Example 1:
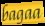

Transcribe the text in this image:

bagaa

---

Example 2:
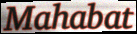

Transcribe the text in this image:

Mahabat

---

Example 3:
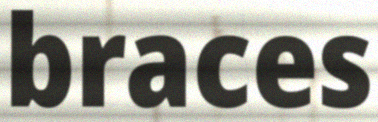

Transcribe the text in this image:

braces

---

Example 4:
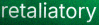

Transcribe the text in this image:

retaliatory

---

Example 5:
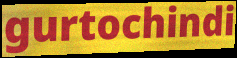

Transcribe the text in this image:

gurtochindi